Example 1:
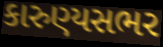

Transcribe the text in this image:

કારુણ્યસભર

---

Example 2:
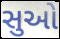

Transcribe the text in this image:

સુઓ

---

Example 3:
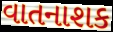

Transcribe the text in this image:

વાતનાશક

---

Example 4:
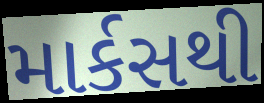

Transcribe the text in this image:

માર્કસથી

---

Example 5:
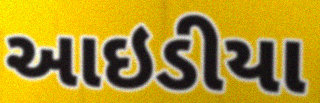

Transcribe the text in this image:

આઇડીયા